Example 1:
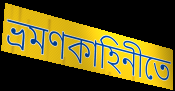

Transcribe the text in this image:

ভ্রমণকাহিনীতে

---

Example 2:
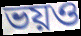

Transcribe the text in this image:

ভয়ও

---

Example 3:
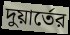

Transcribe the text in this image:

দুয়ার্তের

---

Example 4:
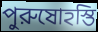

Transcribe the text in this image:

পুরুষোহস্তি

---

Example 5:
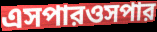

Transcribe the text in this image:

এসপারওসপার